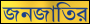
জনজাতির